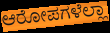
ಆರೋಪಗಳೆಲ್ಲಾ